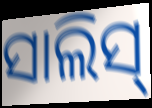
ସାଲିସ୍